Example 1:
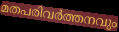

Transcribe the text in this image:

മതപരിവർത്തനവും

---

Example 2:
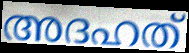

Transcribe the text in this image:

അദഹത്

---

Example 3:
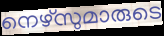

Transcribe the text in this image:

നെഴ്സുമാരുടെ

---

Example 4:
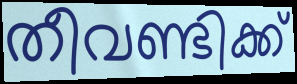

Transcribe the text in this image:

തീവണ്ടിക്ക്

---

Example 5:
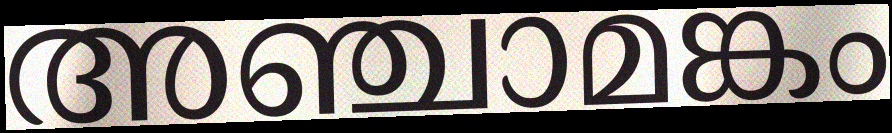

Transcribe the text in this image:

അഞ്ചാമങ്കം